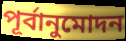
পূর্বানুমোদন